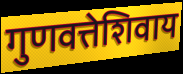
गुणवत्तेशिवाय